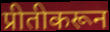
प्रीतीकरून